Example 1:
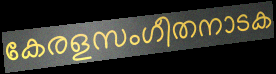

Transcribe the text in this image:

കേരളസംഗീതനാടക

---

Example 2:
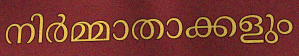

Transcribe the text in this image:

നിർമ്മാതാക്കളും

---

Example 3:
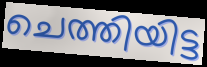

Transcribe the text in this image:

ചെത്തിയിട്ട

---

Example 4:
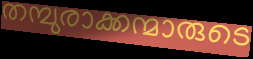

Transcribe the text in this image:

തമ്പുരാക്കന്മാരുടെ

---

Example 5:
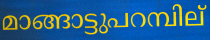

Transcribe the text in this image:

മാങ്ങാട്ടുപറമ്പില്